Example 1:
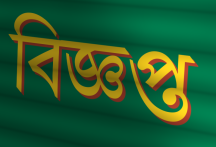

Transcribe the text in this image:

বিজ্ঞপ্ত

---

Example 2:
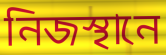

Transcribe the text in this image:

নিজস্থানে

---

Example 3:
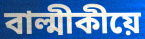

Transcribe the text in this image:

বাল্মীকীয়ে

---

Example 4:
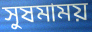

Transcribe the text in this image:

সুষমাময়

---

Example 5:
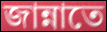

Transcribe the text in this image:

জান্নাতে